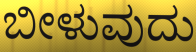
ಬೀಳುವುದು